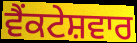
ਵੈਂਕਟੇਸ਼ਵਾਰ